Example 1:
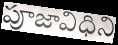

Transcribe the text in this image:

పూజావిధిని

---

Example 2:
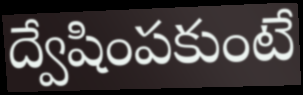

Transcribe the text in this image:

ద్వేషింపకుంటే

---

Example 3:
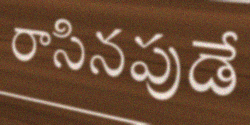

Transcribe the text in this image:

రాసినపుడే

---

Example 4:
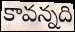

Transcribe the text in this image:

కావన్నది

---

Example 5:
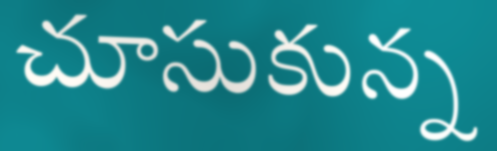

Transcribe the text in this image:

చూసుకున్న